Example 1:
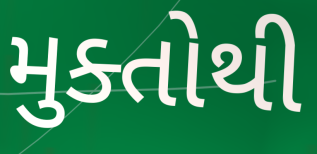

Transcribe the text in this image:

મુક્તોથી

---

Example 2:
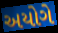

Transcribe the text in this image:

અયોગે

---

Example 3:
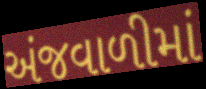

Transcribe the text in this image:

અંજવાળીમાં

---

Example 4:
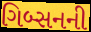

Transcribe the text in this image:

ગિબ્સનની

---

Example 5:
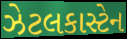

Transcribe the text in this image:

ઝેટલકાસ્ટેન